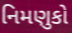
નિમણુકો